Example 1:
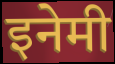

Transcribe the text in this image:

इनेमी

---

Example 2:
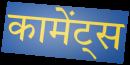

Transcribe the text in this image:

कामेंट्स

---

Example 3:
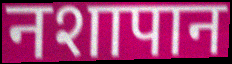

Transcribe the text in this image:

नशापान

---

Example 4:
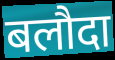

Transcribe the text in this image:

बलौदा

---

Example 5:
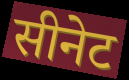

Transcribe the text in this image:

सीनेट